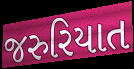
જરુરિયાત